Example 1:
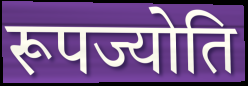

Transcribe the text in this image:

रूपज्योति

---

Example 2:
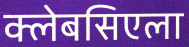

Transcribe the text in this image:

क्लेबसिएला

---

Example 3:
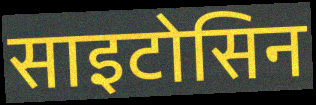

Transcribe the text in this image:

साइटोसिन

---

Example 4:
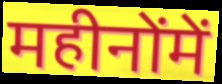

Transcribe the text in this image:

महीनोंमें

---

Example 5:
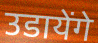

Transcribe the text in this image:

उडायेंगे